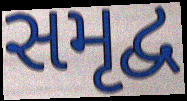
સમૃદ્વ